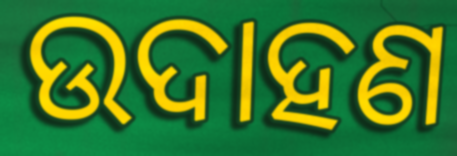
ଉଦାହଣ